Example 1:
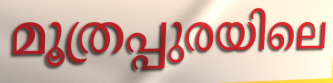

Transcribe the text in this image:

മൂത്രപ്പുരയിലെ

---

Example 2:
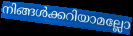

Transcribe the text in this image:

നിങ്ങൾക്കറിയാമല്ലോ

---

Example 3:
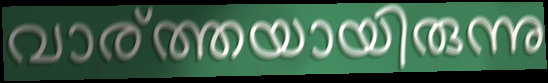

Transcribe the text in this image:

വാര്ത്തയായിരുന്നു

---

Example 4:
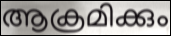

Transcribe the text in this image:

ആക്രമിക്കും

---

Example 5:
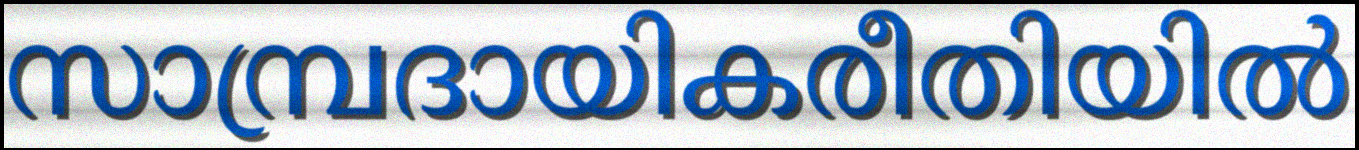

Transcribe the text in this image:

സാമ്പ്രദായികരീതിയിൽ